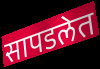
सापडलेत